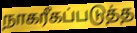
நாகரீகப்படுத்த